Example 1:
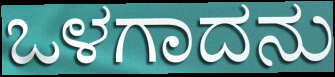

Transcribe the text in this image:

ಒಳಗಾದನು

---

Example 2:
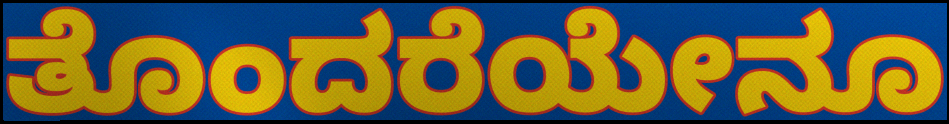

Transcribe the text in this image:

ತೊಂದರೆಯೇನೂ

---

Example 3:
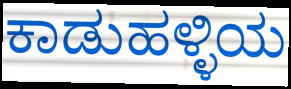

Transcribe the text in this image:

ಕಾಡುಹಳ್ಳಿಯ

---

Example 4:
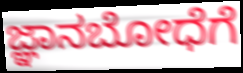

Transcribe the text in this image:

ಜ್ಞಾನಬೋಧೆಗೆ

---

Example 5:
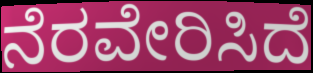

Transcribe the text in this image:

ನೆರವೇರಿಸಿದೆ